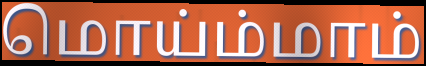
மொய்ம்மாம்